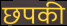
छपकी